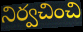
నిర్వచించి